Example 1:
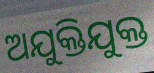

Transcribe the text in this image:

ଅଯୁକ୍ତିଯୁକ୍ତ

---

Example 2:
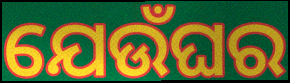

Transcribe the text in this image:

ଯେଉଁଘର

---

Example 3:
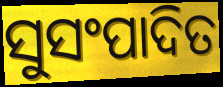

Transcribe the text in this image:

ସୁସଂପାଦିତ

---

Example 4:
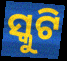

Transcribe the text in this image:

ସ୍କୁଟି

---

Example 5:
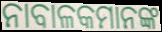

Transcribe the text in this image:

ନାବାଳକମାନଙ୍କ